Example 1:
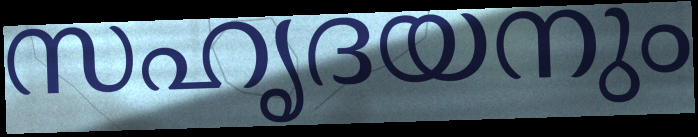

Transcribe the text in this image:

സഹൃദയനും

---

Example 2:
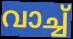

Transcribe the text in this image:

വാച്ച്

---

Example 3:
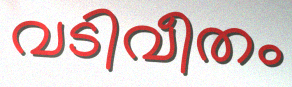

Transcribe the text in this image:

വടിവീതം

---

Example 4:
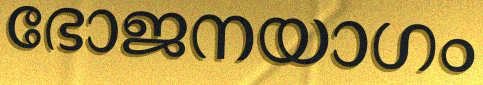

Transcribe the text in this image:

ഭോജനയാഗം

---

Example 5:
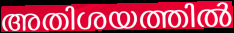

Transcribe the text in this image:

അതിശയത്തിൽ